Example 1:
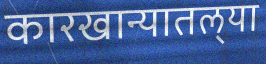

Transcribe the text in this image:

कारखान्यातल्या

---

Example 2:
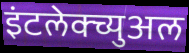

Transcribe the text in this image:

इंटलेक्च्युअल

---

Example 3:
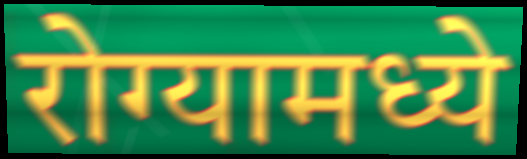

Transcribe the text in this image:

रोग्यामध्ये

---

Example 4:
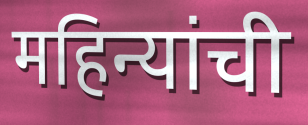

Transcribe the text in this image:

महिन्यांची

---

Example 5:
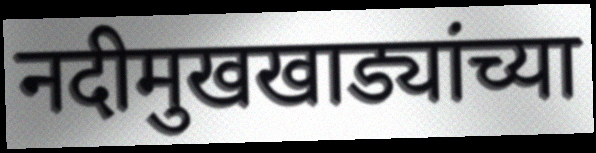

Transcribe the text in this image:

नदीमुखखाड्यांच्या